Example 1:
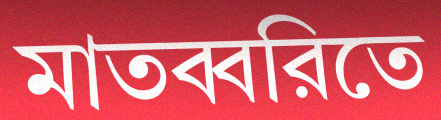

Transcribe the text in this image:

মাতব্বরিতে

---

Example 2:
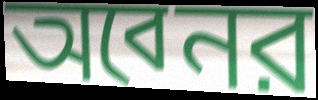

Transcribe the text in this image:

অব্নের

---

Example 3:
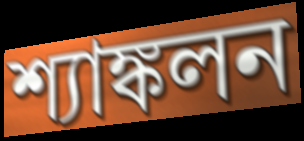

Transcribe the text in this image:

শ্যাঙ্কলন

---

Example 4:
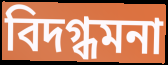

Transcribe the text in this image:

বিদগ্ধমনা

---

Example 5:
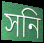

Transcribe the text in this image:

সনি